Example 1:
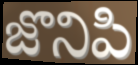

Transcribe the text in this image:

జొనిపి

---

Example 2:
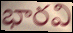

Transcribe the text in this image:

భారవి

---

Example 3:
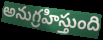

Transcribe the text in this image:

అనుగ్రహిస్తుంది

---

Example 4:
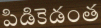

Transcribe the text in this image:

పిడికెడంత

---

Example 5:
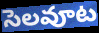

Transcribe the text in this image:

సెలవూట